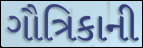
ગૌત્રિકાની